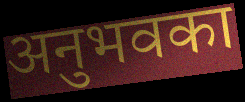
अनुभवका